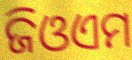
ଜିଓଏମ